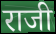
राजी